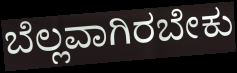
ಬೆಲ್ಲವಾಗಿರಬೇಕು